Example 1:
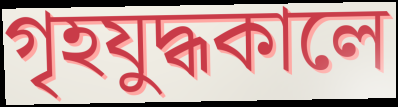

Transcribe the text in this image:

গৃহযুদ্ধকালে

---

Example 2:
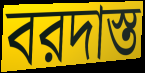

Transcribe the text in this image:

বরদাস্ত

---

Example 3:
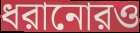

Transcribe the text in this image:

ধরানোরও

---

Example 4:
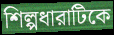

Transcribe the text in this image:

শিল্পধারাটিকে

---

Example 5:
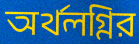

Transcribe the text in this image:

অর্থলগ্নির